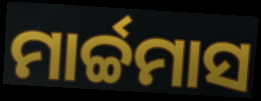
ମାର୍ଚ୍ଚମାସ